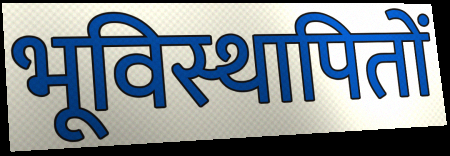
भूविस्थापितों